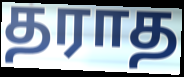
தராத